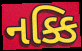
નક્કિ